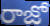
రాజో